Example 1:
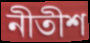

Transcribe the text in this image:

নীতীশ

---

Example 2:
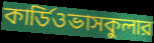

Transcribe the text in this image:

কার্ডিওভাসকুলার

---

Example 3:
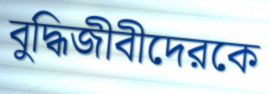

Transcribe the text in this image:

বুদ্ধিজীবীদেরকে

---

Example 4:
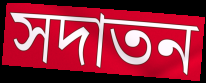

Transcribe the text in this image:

সদাতন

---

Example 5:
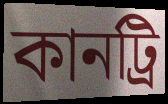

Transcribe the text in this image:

কানট্রি